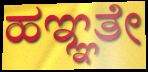
ಹಞ್ಞತೇ